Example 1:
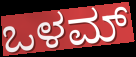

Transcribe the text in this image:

ಒಳಮ್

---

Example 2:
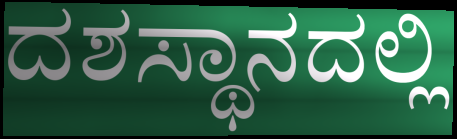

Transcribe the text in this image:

ದಶಸ್ಥಾನದಲ್ಲಿ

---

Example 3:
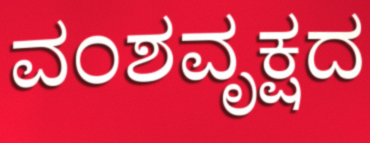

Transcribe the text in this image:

ವಂಶವೃಕ್ಷದ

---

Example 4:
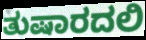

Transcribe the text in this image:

ತುಷಾರದಲಿ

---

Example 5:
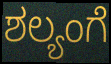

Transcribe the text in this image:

ಶಲ್ಯಂಗೆ